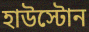
হাউস্টোন